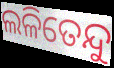
ଲଳିତେନ୍ଦୁ